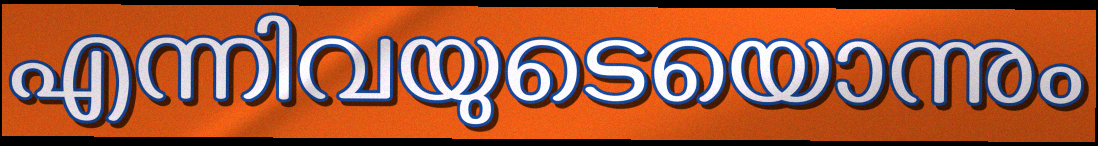
എന്നിവയുടെയൊന്നും